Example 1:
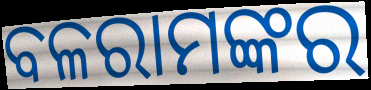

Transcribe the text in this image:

ବଳରାମଙ୍କର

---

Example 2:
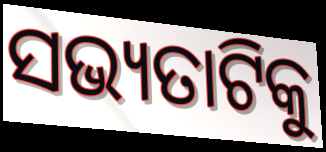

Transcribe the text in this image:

ସଭ୍ୟତାଟିକୁ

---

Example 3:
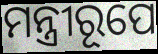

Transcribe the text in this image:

ମନ୍ତ୍ରୀରୂପେ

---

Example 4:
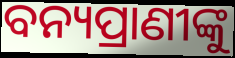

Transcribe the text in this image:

ବନ୍ୟପ୍ରାଣୀଙ୍କୁ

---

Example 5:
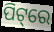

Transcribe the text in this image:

ପିଟ୍‌ରେ